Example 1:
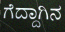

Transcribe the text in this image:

ಗೆದ್ದಾಗಿನ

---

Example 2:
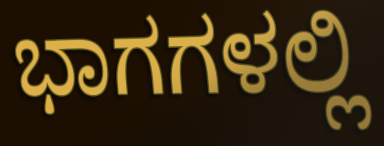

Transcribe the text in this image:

ಭಾಗಗಳಲ್ಲಿ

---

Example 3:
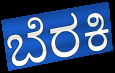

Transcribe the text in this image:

ಬೆರಕಿ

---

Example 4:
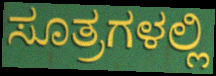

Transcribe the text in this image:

ಸೂತ್ರಗಳಲ್ಲಿ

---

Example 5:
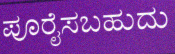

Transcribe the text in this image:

ಪೂರೈಸಬಹುದು